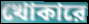
খোকারে